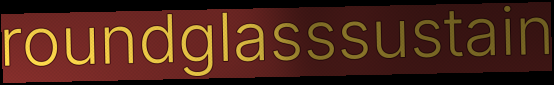
roundglasssustain